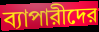
ব্যাপারীদের